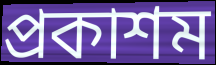
প্ৰকাশম